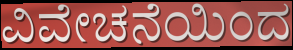
ವಿವೇಚನೆಯಿಂದ